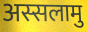
अस्सलामु